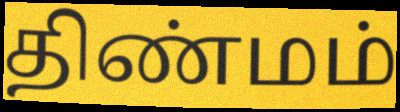
திண்மம்